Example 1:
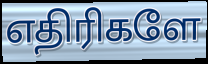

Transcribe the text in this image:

எதிரிகளே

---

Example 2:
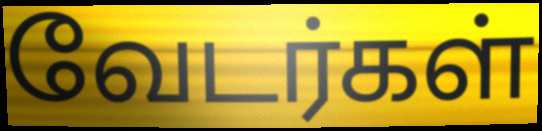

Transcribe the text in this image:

வேடர்கள்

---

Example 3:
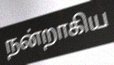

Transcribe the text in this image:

நன்றாகிய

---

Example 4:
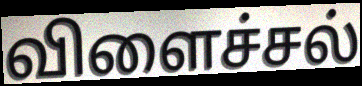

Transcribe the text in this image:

விளைச்சல்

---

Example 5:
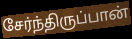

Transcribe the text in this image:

சேர்ந்திருப்பான்